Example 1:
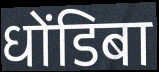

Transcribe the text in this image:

धोंडिबा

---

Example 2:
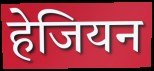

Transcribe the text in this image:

हेजियन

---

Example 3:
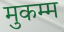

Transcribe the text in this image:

मुकम्म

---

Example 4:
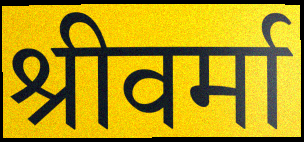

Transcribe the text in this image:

श्रीवर्मा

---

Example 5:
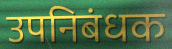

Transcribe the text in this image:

उपनिबंधक